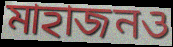
মাহাজনও